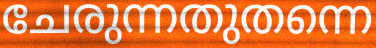
ചേരുന്നതുതന്നെ